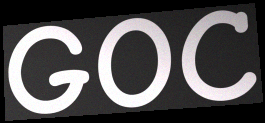
GOC